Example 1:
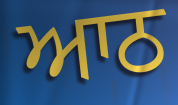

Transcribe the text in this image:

ਆਠ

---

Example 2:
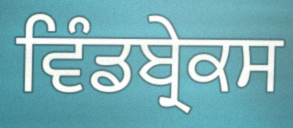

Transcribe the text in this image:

ਵਿੰਡਬ੍ਰੇਕਸ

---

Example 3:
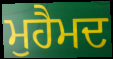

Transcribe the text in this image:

ਮੁਹੈਮਦ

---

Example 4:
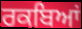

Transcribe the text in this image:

ਰਕਬਿਆਂ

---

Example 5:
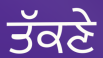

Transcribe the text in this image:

ਤੱਕਣੇ